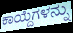
ಕಾಯ್ದೆಗಳನ್ನು